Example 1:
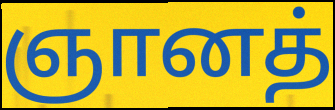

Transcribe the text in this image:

ஞானத்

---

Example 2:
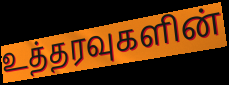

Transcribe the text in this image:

உத்தரவுகளின்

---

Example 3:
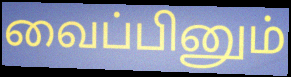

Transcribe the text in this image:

வைப்பினும்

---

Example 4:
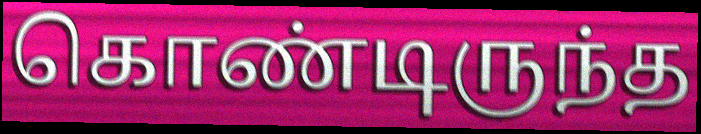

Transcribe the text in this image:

கொண்டிருந்த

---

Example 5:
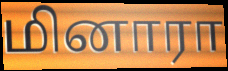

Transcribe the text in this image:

மினாரா